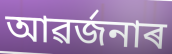
আৱৰ্জনাৰ